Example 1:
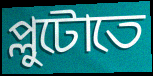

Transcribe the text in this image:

প্লুটোতে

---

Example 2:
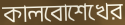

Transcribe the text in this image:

কালবোশেখের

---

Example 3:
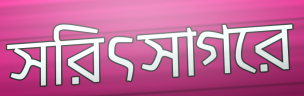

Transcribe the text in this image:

সরিৎসাগরে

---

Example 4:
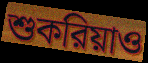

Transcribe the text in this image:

শুকরিয়াও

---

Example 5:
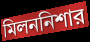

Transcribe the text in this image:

মিলননিশার